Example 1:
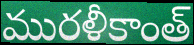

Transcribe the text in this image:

మురళీకాంత్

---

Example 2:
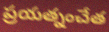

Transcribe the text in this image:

ప్రయత్నంచేత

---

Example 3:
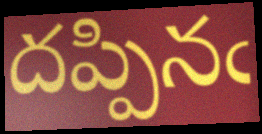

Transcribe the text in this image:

దప్పినఁ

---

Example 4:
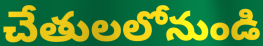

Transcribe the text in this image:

చేతులలోనుండి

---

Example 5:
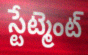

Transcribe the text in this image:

స్టేట్మెంట్